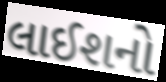
લાઈશનો